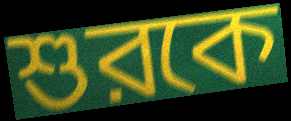
শুরকে